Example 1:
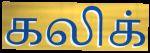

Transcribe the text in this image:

கலிக்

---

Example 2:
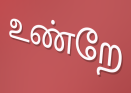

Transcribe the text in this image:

உண்றே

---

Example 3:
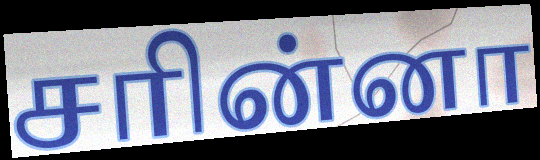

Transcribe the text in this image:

சரின்னா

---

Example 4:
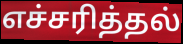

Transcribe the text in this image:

எச்சரித்தல்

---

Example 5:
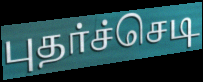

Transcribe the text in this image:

புதர்ச்செடி